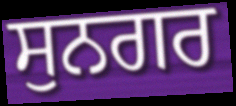
ਸੁਨਗਰ